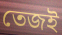
তেজই